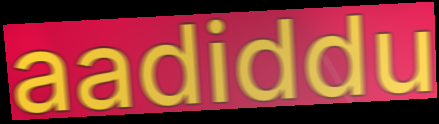
aadiddu